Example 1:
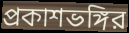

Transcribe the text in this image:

প্রকাশভঙ্গির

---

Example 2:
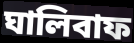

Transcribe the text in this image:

ঘালিবাফ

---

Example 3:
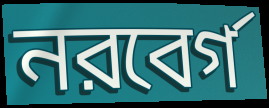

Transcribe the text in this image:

নরবের্গ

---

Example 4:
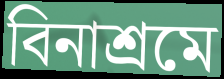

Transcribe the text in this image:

বিনাশ্রমে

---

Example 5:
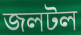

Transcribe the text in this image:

জলটল